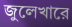
জুলেখারে